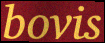
bovis